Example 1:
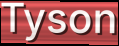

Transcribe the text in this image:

Tyson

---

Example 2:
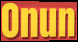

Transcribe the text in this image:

Onun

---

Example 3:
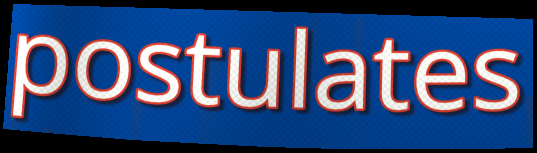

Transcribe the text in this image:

postulates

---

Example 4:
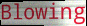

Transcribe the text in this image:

Blowing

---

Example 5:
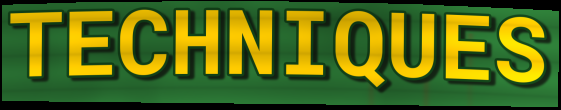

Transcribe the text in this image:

TECHNIQUES